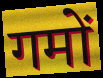
गमों